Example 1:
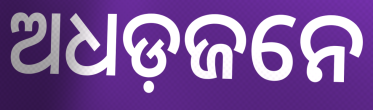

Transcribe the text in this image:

ଅଧଡ଼ଜନେ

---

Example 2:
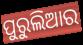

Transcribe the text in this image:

ପୁରୁଲିଆର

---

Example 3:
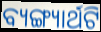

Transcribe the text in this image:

ବ୍ୟଙ୍ଗ୍ୟାର୍ଥଟି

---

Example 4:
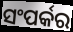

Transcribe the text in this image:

ସଂପର୍କର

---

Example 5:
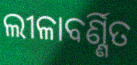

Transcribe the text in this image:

ଲୀଳାବର୍ଣ୍ଣିତ